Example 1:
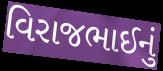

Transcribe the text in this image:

વિરાજભાઈનું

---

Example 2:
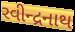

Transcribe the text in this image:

રવીન્દ્રનાથ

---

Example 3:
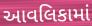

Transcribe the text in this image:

આવલિકામાં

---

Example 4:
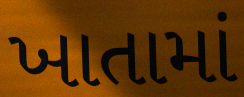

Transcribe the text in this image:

ખાતામાં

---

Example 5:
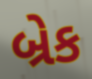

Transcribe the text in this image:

બ્રેક